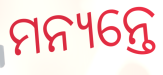
ମନ୍ୟନ୍ତେ